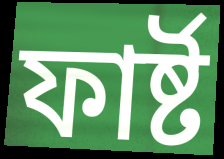
ফার্ষ্ট